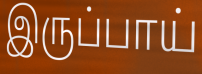
இருப்பாய்